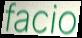
facio